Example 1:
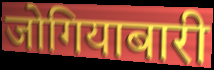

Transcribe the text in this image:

जोगियाबारी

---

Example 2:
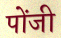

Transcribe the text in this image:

पोंजी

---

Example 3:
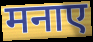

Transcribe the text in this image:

मनाए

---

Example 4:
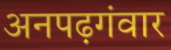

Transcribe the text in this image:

अनपढ़गंवार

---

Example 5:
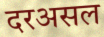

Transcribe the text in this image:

दरअसल